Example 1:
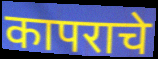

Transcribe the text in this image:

कापराचे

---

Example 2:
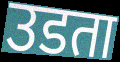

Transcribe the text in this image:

उडता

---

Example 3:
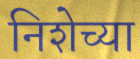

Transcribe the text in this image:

निशेच्या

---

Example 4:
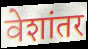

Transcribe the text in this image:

वेशांतर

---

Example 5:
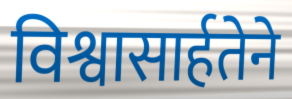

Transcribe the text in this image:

विश्वासार्हतेने